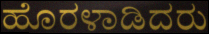
ಹೊರಳಾಡಿದರು